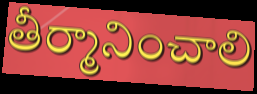
తీర్మానించాలి